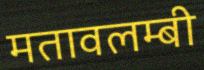
मतावलम्बी